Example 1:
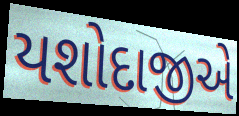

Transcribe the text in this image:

યશોદાજીએ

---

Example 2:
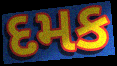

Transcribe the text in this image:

દમક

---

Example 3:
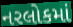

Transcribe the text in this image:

નરલોકમાં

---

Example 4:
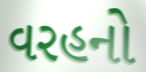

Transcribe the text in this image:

વરહનો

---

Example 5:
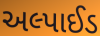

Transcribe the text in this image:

અલ્પાઈડ